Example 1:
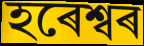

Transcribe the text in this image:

হৰেশ্বৰ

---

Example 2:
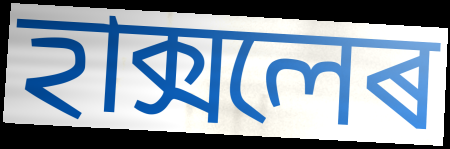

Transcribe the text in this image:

হাক্সলেৰ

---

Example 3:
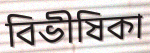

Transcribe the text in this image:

বিভীষিকা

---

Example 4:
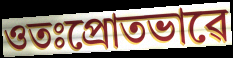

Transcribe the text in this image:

ওতঃপ্ৰোতভাৱে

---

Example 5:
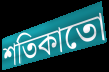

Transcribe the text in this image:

শতিকাতো